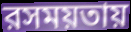
রসময়তায়